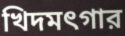
খিদমৎগার